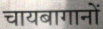
चायबागानों